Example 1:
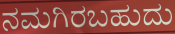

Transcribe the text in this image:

ನಮಗಿರಬಹುದು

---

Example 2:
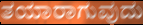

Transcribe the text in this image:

ತಯಾರಾಗುವುದು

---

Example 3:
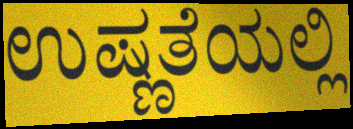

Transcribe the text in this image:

ಉಷ್ಣತೆಯಲ್ಲಿ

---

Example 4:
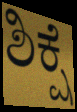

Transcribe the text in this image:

ಶಿಕ್ಷೆ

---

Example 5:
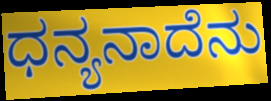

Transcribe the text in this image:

ಧನ್ಯನಾದೆನು